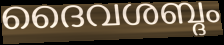
ദൈവശബ്ദം